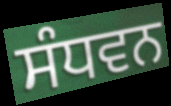
ਸੰਧਵਨ